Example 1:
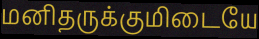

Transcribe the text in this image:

மனிதருக்குமிடையே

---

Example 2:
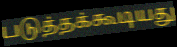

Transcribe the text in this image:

படுத்தக்கூடியது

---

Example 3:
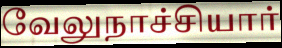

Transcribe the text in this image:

வேலுநாச்சியார்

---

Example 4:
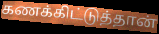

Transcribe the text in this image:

கணக்கிட்டுத்தான்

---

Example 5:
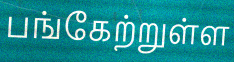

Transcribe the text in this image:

பங்கேற்றுள்ள